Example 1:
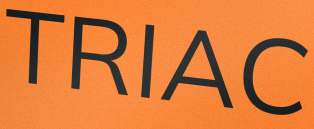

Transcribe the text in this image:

TRIAC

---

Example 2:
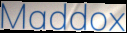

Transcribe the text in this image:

Maddox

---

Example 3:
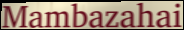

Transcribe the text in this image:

Mambazahai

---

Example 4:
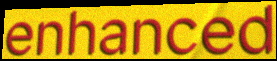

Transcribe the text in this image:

enhanced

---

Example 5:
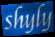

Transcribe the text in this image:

shyly